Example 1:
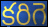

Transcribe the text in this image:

కరిగె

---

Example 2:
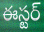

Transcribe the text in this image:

ఈస్టర్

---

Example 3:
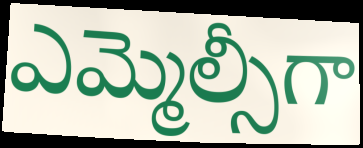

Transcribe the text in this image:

ఎమ్మెల్సీగా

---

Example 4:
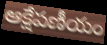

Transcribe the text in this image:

ఆక్షేపణీయం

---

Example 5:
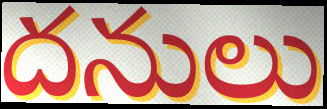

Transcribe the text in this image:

దనులు